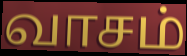
வாசம்